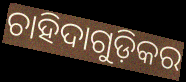
ଚାହିଦାଗୁଡ଼ିକର